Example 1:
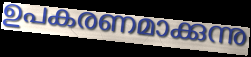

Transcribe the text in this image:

ഉപകരണമാക്കുന്നു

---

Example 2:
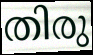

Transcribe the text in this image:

തിരു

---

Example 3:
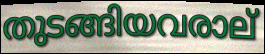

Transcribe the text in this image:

തുടങ്ങിയവരാല്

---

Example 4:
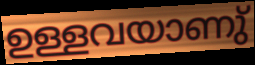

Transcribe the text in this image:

ഉള്ളവയാണു്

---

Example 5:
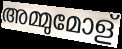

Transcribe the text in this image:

അമ്മുമോള്